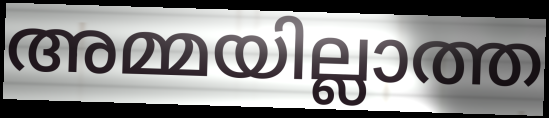
അമ്മയില്ലാത്ത